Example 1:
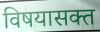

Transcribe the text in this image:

विषयासक्त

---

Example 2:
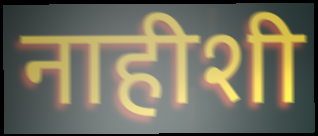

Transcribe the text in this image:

नाहीशी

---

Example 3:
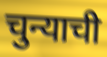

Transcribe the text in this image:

चुन्याची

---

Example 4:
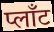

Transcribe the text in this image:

प्लाँट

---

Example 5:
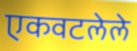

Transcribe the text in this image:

एकवटलेले